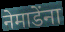
नेमाडेंना